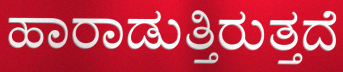
ಹಾರಾಡುತ್ತಿರುತ್ತದೆ